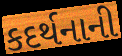
કદર્થનાની